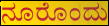
ನೂರೊಂದು